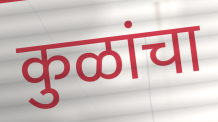
कुळांचा